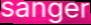
sanger